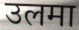
उलमा